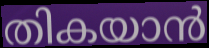
തികയാൻ